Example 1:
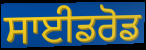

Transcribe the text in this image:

ਸਾਈਡਰੋਡ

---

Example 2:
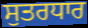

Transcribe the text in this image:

ਸੁਤਰਧਾਰ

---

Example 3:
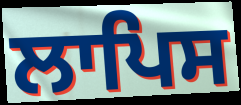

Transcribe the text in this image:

ਲਾਪਿਸ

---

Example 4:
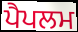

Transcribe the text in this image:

ਪੈਪਲਮ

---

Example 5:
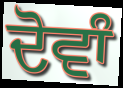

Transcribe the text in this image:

ਦੋਵਾੰ